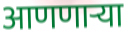
आणणाऱ्या